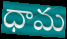
ధామ